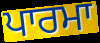
ਪਾਰਮਾ